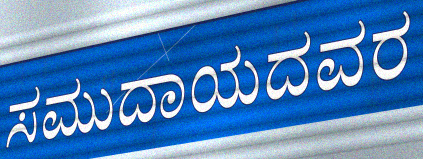
ಸಮುದಾಯದವರ